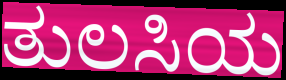
ತುಲಸಿಯ